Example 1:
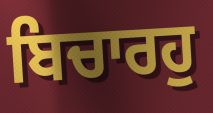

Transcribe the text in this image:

ਬਿਚਾਰਹੁ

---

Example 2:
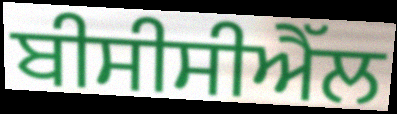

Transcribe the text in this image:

ਬੀਸੀਸੀਐੱਲ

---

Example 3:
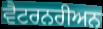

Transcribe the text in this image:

ਵੈਟਰਨਰੀਅਨ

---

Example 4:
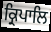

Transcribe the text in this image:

ਕ੍ਰਿਪਾਲਿ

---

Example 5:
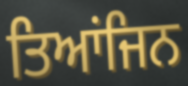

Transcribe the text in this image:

ਤਿਆਂਜਿਨ